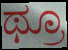
ಥ್ರೂ